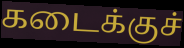
கடைக்குச்